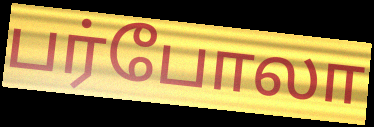
பர்போலா